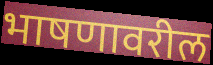
भाषणावरील